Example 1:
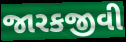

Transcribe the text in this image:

જારકજીવી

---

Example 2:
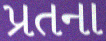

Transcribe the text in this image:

પ્રતના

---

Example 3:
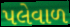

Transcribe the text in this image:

પલેવાળ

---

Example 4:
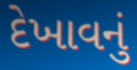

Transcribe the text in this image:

દેખાવનું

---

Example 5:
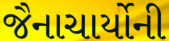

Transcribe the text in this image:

જૈનાચાર્યોની